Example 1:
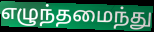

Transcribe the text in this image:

எழுந்தமைந்து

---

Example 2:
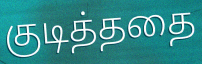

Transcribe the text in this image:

குடித்ததை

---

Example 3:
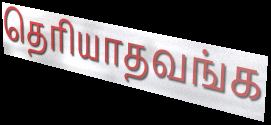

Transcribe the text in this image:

தெரியாதவங்க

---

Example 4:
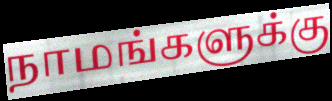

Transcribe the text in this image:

நாமங்களுக்கு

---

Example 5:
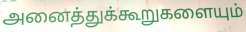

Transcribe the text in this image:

அனைத்துக்கூறுகளையும்